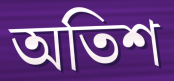
অতিশ